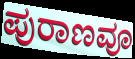
ಪುರಾಣವೂ